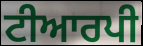
ਟੀਆਰਪੀ